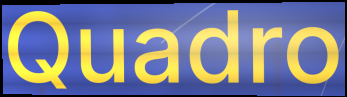
Quadro